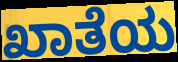
ಖಾತೆಯ